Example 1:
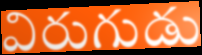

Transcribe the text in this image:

విరుగుడు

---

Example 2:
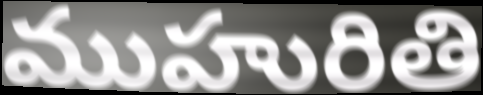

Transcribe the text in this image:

ముహురితి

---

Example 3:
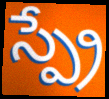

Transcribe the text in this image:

స్ప్రే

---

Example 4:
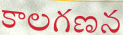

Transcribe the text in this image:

కాలగణన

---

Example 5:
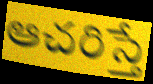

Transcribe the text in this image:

ఆచరిస్తే